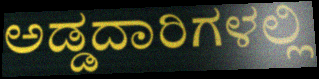
ಅಡ್ಡದಾರಿಗಳಲ್ಲಿ